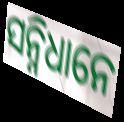
ସନ୍ନିଧାନେ